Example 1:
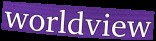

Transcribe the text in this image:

worldview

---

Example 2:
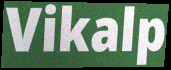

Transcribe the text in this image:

Vikalp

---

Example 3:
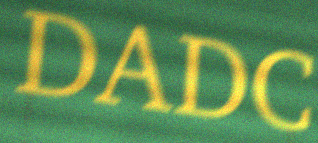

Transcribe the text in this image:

DADC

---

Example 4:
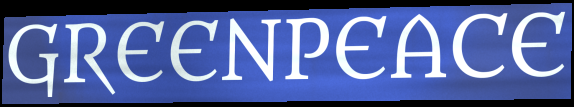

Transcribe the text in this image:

GREENPEACE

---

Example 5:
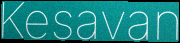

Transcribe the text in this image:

Kesavan